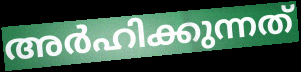
അർഹിക്കുന്നത്